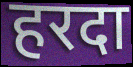
हरदा